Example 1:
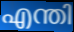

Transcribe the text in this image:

എന്തി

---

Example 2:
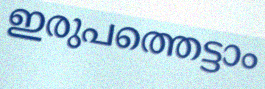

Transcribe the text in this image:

ഇരുപത്തെട്ടാം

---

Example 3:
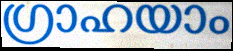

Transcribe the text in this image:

ഗ്രാഹയാം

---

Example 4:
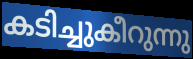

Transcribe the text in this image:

കടിച്ചുകീറുന്നു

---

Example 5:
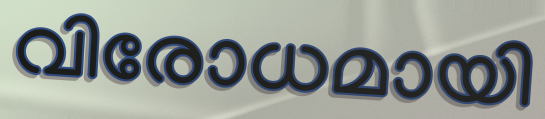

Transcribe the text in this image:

വിരോധമായി